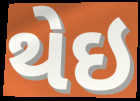
થેઇ